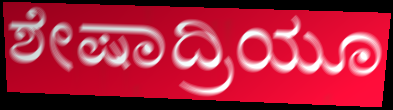
ಶೇಷಾದ್ರಿಯೂ